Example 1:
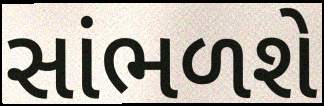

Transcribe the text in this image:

સાંભળશે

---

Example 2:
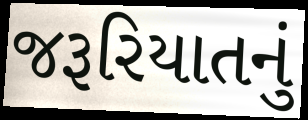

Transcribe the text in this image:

જરૂરિયાતનું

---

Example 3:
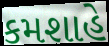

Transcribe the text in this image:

કમશાહે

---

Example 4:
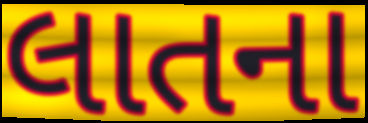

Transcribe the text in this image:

લાતના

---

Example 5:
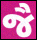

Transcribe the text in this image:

જૈ